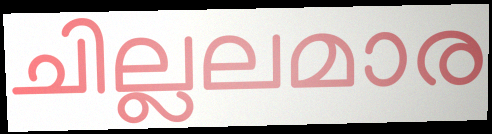
ചില്ലലമാര